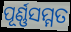
ପୂର୍ଣ୍ଣସମ୍ମତ